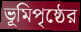
ভূমিপৃষ্ঠের